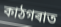
কাঠগৰাত